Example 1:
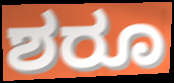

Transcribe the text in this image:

ಶರೂ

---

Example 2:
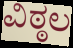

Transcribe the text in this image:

ವಿಠ್ಠಲ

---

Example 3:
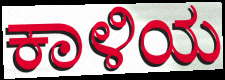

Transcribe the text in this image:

ಕಾಳಿಯ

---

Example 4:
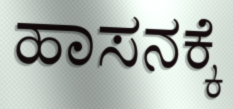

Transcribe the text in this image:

ಹಾಸನಕ್ಕೆ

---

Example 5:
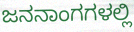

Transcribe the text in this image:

ಜನನಾಂಗಗಳಲ್ಲಿ